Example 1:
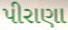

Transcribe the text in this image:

પીરાણા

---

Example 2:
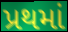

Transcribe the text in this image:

પ્રથમાં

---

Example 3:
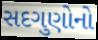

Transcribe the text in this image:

સદગુણોનો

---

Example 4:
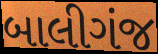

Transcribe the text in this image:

બાલીગંજ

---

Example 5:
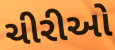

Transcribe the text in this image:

ચીરીઓ